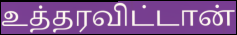
உத்தரவிட்டான்